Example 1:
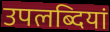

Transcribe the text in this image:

उपलब्दियां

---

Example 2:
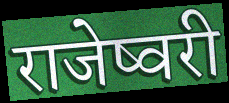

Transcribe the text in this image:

राजेष्वरी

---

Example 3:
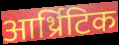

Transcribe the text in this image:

आर्थ्रिटिक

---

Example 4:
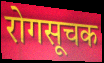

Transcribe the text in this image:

रोगसूचक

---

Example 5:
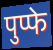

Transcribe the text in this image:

पुप्फे